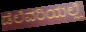
ಡೆಲಿವರಿಯಲ್ಲಿ